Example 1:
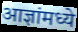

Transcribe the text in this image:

आज्ञांमध्ये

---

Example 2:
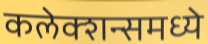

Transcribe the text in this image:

कलेक्शन्समध्ये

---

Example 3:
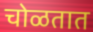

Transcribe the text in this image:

चोळतात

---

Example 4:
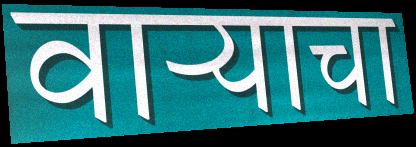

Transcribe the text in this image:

वाऱ्याचा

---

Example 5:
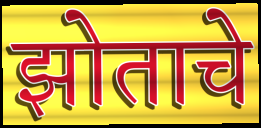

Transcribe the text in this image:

झोताचे